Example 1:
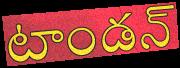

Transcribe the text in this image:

టాండన్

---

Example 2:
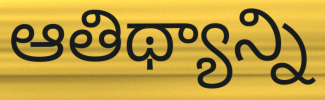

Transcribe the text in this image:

ఆతిథ్యాన్ని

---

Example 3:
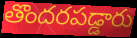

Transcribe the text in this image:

తొందరపడ్డారు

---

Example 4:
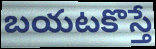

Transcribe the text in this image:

బయటకొస్తే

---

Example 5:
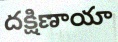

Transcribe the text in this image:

దక్షిణాయా